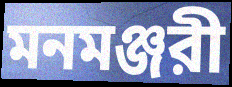
মনমঞ্জরী